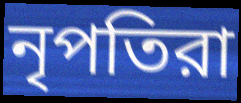
নৃপতিরা